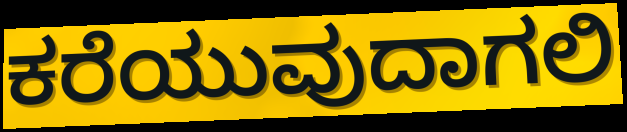
ಕರೆಯುವುದಾಗಲಿ